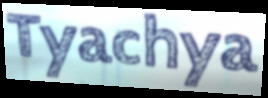
Tyachya